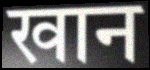
खान